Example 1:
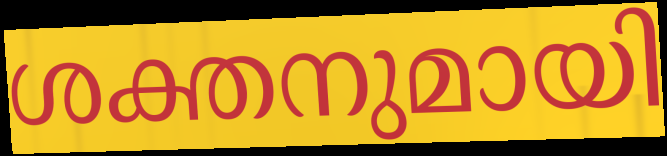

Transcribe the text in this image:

ശക്തനുമായി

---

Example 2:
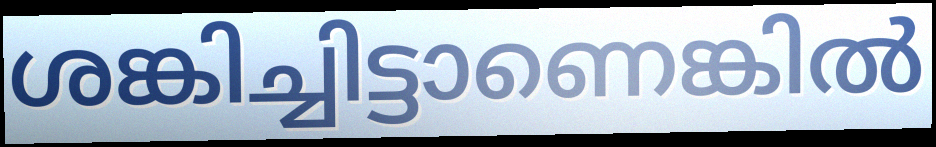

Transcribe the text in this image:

ശങ്കിച്ചിട്ടാണെങ്കിൽ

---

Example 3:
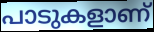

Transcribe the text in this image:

പാടുകളാണ്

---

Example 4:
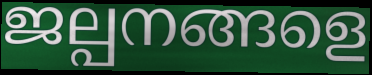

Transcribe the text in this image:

ജല്പനങ്ങളെ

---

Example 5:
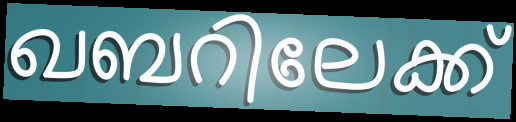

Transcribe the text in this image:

ഖബറിലേക്ക്